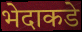
भेदाकडे